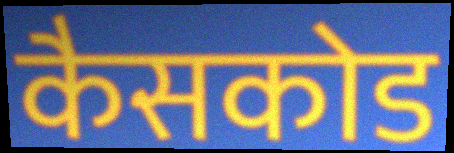
कैसकोड